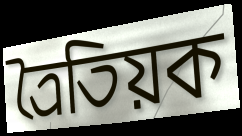
ত্ৰৈতিয়ক